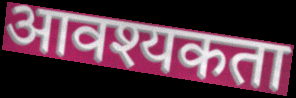
आवश्‍यकता